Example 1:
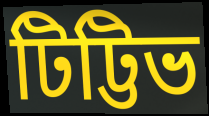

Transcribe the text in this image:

টিট্টিভ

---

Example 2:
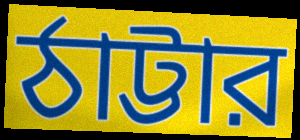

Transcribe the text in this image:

ঠাট্টার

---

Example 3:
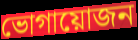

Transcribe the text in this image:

ভোগায়োজন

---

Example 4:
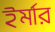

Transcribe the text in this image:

ইর্মার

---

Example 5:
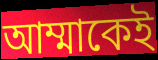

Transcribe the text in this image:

আম্মাকেই